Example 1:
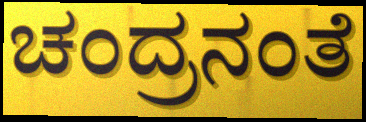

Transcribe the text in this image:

ಚಂದ್ರನಂತೆ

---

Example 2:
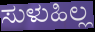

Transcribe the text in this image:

ಸುಳುಹಿಲ್ಲ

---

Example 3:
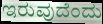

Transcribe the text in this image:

ಇರುವುದೆಂದು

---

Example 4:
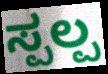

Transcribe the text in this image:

ಸ್ಪಲ್ಪ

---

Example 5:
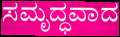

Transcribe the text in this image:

ಸಮೃದ್ಧವಾದ